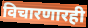
विचारणारही